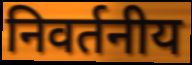
निवर्तनीय